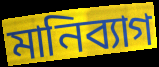
মানিব্যাগ